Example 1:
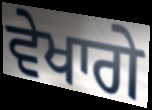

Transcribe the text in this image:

ਵੇਖਾਗੇ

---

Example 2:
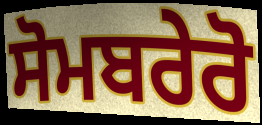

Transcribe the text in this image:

ਸੋਮਬਰੇਰੋ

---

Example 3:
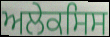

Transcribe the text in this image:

ਅਲੇਕਸਿਸ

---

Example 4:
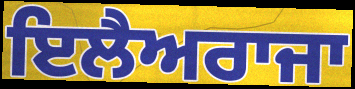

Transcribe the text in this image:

ਇਲੈਅਰਾਜਾ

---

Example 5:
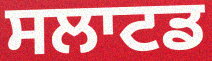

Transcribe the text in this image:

ਸਲਾਟਡ